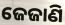
ଜେଜାଣି